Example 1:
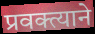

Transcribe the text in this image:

प्रवक्‍त्याने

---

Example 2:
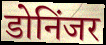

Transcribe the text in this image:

डोनिंजर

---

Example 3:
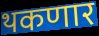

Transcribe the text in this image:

थकणार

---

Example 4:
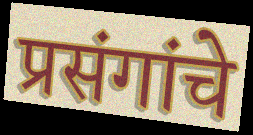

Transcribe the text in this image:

प्रसंगांचे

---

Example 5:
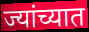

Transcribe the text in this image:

ज्यांच्यात